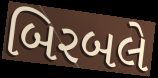
બિરબલે